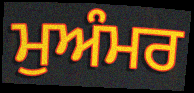
ਮੁਅੰਮਰ